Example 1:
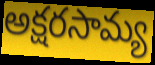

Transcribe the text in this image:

అక్షరసామ్య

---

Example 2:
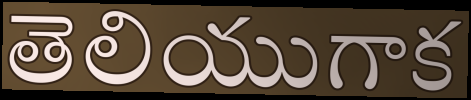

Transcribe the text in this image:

తెలియుగాక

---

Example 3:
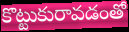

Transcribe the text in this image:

కొట్టుకురావడంతో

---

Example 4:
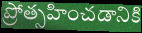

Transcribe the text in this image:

ప్రోత్సహించడానికి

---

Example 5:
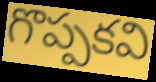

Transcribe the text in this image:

గొప్పకవి